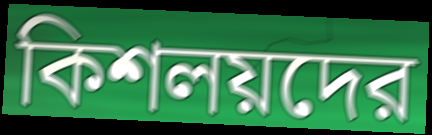
কিশলয়দের